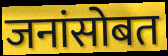
जनांसोबत